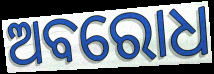
ଅବରୋଧ